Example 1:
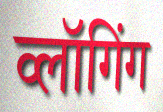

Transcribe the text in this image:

व्लॉगिंग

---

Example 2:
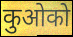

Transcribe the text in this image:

कुओको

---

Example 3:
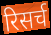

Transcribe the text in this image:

रिसर्च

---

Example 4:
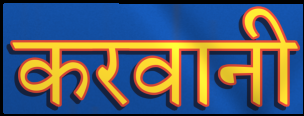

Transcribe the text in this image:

करवानी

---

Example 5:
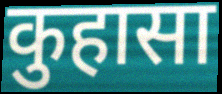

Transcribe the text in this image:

कुहासा